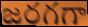
జరగగా